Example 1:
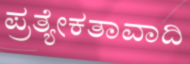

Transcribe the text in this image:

ಪ್ರತ್ಯೇಕತಾವಾದಿ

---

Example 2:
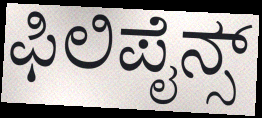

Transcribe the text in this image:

ಫಿಲಿಪೈನ್ಸ್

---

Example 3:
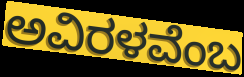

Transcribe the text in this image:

ಅವಿರಳವೆಂಬ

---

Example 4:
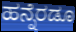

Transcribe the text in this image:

ಹನ್ನೆರಡೂ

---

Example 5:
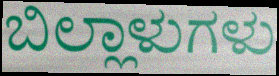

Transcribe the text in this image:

ಬಿಲ್ಲಾಳುಗಳು